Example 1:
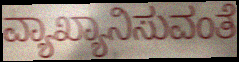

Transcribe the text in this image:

ವ್ಯಾಖ್ಯಾನಿಸುವಂತೆ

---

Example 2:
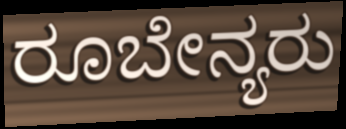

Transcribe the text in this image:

ರೂಬೇನ್ಯರು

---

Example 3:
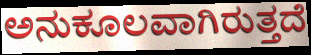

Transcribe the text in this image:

ಅನುಕೂಲವಾಗಿರುತ್ತದೆ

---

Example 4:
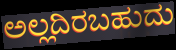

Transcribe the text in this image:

ಅಲ್ಲದಿರಬಹುದು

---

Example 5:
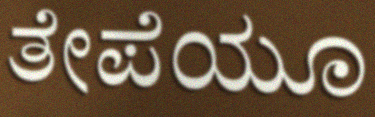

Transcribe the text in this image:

ತೇಪೆಯೂ